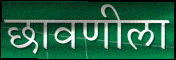
छावणीला